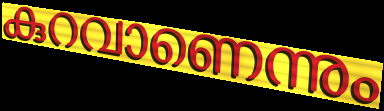
കുറവാണെന്നും